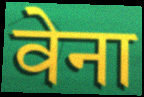
वेना